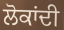
ਲੋਕਾਂਦੀ